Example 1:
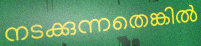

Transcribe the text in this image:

നടക്കുന്നതെങ്കിൽ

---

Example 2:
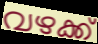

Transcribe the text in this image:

വഴക്ക്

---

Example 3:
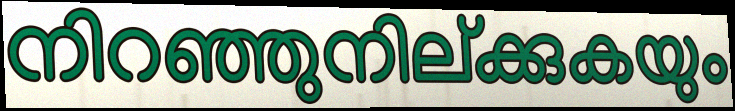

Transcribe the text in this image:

നിറഞ്ഞുനില്ക്കുകയും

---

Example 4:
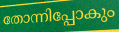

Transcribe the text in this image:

തോന്നിപ്പോകും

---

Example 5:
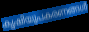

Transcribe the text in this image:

കൃഷിയുപകരണങ്ങൾ